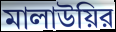
মালাউয়ির